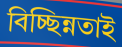
বিচ্ছিন্নতাই